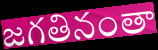
జగతినంతా